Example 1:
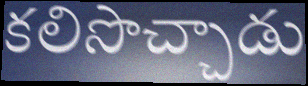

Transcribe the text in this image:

కలిసొచ్చాడు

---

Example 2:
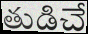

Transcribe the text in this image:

తుడిచే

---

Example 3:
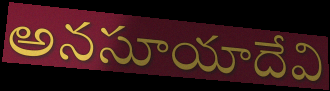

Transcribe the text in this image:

అనసూయాదేవి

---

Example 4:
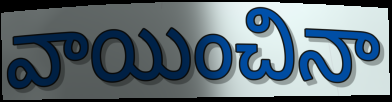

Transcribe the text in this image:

వాయించినా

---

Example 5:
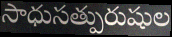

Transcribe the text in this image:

సాధుసత్పురుషుల